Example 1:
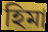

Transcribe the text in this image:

হিমা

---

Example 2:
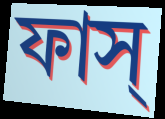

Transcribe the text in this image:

ফাস্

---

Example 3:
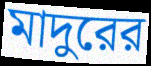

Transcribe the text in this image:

মাদুরের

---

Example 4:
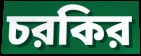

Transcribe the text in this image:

চরকির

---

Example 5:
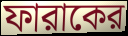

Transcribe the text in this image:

ফারাকের